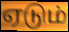
ஏடும்